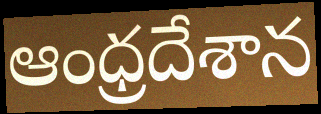
ఆంధ్రదేశాన